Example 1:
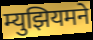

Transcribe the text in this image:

म्युझियमने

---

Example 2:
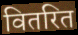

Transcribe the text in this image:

वितरित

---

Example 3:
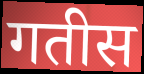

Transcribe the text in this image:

गतीस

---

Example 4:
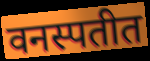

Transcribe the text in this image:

वनस्पतीत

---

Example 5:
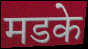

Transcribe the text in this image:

मडके